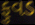
ફુવડ